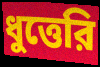
ধুত্তেরি